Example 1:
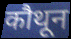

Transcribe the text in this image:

कौथून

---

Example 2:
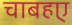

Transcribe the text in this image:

चाबहए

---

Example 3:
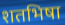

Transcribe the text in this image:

शतभिषा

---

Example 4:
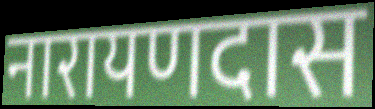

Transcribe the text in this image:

नारायणदास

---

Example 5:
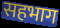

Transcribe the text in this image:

सहभाग